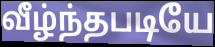
வீழ்ந்தபடியே